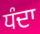
ਧੰਦਾ